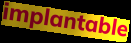
implantable